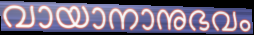
വായാനാനുഭവം